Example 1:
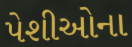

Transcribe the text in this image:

પેશીઓના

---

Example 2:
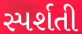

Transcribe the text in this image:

સ્પર્શતી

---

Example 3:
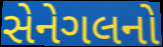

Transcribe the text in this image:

સેનેગલનો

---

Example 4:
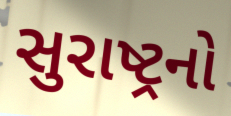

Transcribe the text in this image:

સુરાષ્ટ્રનો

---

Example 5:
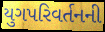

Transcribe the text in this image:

યુગપરિવર્તનની